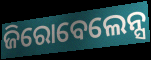
ଜିରୋବେଲେନ୍ସ